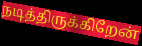
நடித்திருக்கிறேன்